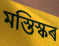
মস্তিস্কৰ